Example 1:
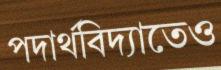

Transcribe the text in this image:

পদার্থবিদ্যাতেও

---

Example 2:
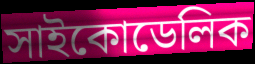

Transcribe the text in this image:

সাইকোডেলিক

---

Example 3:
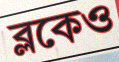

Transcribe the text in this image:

ব্লকেও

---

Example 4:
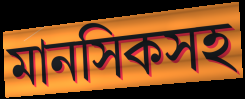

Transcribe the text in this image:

মানসিকসহ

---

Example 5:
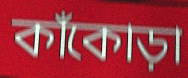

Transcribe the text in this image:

কাঁকোড়া